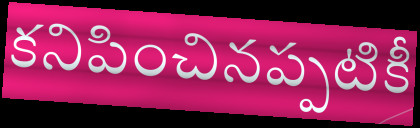
కనిపించినప్పటికీ